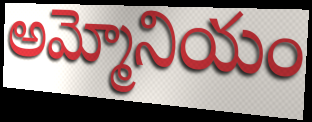
అమ్మోనియం